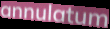
annulatum